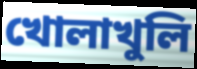
খোলাখুলি